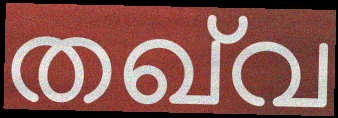
തഖ്‌വ